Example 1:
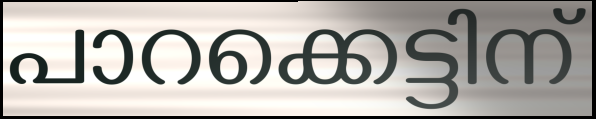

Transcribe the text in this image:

പാറക്കെട്ടിന്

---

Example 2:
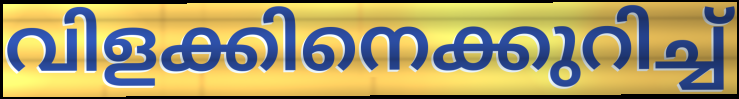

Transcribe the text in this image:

വിളക്കിനെക്കുറിച്ച്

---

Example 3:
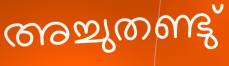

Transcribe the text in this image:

അച്ചുതണ്ടു്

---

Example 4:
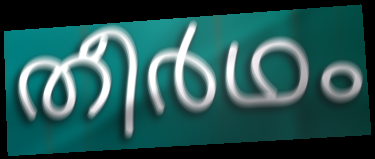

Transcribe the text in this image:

തീർഥം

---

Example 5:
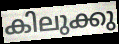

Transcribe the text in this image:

കിലുക്കു